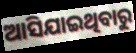
ଆସିଯାଇଥିବାରୁ